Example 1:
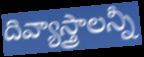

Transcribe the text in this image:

దివ్యాస్త్రాలన్నీ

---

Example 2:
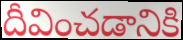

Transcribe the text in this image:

దీవించడానికి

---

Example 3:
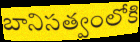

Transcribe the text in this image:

బానిసత్వంలోకి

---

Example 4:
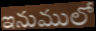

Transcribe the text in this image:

ఇనుములో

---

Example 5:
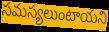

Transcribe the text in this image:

సమస్యలుంటాయని